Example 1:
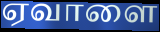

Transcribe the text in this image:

ஏவாளை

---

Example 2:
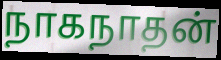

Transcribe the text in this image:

நாகநாதன்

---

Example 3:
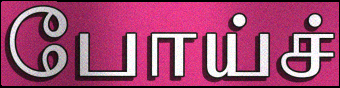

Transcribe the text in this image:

போய்ச்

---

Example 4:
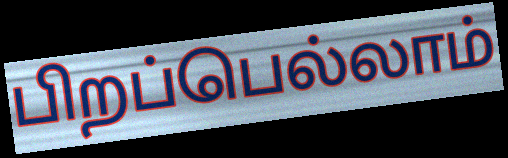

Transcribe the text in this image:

பிறப்பெல்லாம்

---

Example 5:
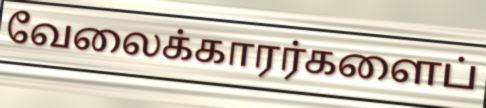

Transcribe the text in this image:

வேலைக்காரர்களைப்